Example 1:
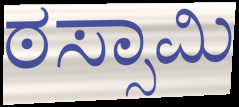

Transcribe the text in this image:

ಠಸ್ಸಾಮಿ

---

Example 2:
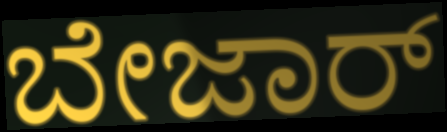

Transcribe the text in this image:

ಬೇಜಾರ್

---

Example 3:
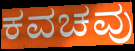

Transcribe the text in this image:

ಕವಚವು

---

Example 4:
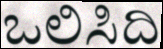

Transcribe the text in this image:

ಒಲಿಸಿದಿ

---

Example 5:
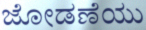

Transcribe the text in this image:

ಜೋಡಣೆಯು